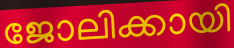
ജോലിക്കായി